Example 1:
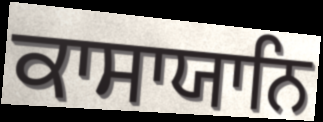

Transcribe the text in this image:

ਕਾਸਾਯਾਨਿ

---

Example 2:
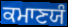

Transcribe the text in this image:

ਕਮਾਣਯੰ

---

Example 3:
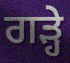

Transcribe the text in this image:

ਗੜ੍ਹੇ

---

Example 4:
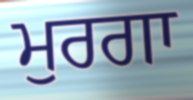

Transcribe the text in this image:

ਮੁਰਗਾ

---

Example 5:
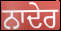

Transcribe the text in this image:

ਨਾਦੇਰ